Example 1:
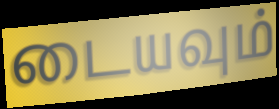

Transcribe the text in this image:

டையவும்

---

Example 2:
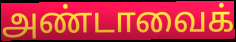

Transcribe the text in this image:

அண்டாவைக்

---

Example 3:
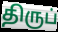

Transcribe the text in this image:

திருப்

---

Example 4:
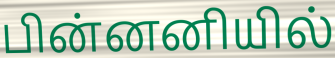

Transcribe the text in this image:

பின்னனியில்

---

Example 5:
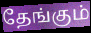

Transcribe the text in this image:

தேங்கும்